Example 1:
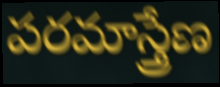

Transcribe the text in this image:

పరమాస్త్రేణ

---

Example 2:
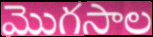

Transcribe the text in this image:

మొగసాల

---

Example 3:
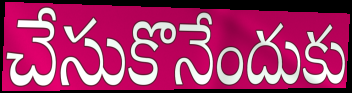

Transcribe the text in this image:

చేసుకొనేందుకు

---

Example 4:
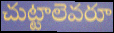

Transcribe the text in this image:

చుట్టాలెవరూ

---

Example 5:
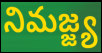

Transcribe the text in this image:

నిమజ్జ్య